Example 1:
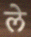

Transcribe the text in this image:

ले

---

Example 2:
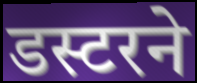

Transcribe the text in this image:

डस्टरने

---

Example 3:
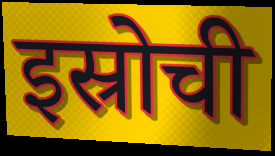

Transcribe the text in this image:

इस्रोची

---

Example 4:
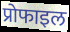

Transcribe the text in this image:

प्रोफाइल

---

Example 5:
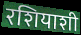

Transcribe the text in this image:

रशियाशी